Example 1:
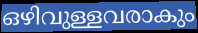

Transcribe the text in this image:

ഒഴിവുള്ളവരാകും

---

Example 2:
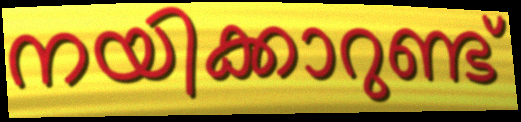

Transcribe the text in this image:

നയിക്കാറുണ്ട്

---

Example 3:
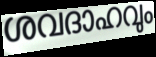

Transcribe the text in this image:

ശവദാഹവും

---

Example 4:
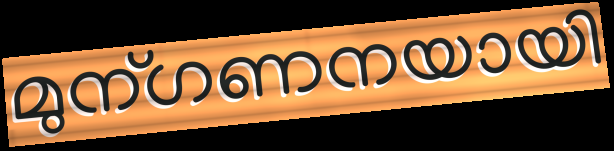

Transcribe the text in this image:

മുന്ഗണനയായി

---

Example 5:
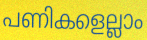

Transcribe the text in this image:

പണികളെല്ലാം